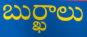
బుర్ఖాలు